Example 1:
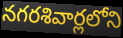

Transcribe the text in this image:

నగరశివార్లలోని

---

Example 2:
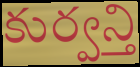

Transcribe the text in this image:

కుర్వన్తి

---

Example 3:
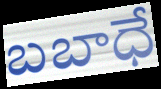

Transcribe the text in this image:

బబాధే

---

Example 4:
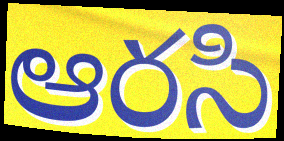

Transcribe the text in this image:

ఆరసి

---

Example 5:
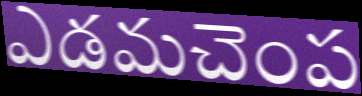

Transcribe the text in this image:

ఎడమచెంప